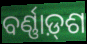
ବର୍ଣ୍ଣାଡ଼୍‌ଶ